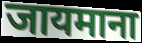
जायमाना